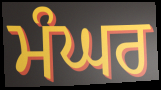
ਮੰਘਰ